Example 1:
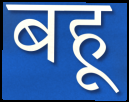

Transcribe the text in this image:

बहू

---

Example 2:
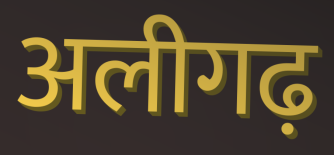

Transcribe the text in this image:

अलीगढ़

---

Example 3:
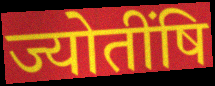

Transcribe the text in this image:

ज्योतींषि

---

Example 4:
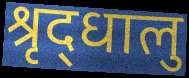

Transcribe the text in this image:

श्रृद्धालु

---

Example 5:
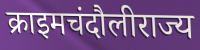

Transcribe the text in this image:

क्राइमचंदौलीराज्य